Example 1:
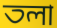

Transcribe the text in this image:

তলা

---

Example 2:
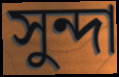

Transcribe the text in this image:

সুন্দা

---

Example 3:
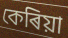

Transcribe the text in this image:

কেৰিয়া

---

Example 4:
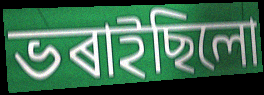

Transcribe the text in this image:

ভৰাইছিলো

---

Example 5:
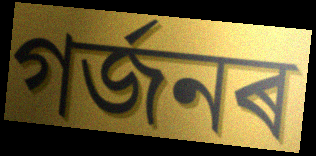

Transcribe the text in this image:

গৰ্জনৰ